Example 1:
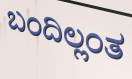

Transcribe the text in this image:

ಬಂದಿಲ್ಲಂತ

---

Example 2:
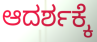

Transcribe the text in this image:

ಆದರ್ಶಕ್ಕೆ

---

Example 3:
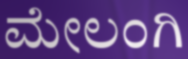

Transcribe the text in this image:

ಮೇಲಂಗಿ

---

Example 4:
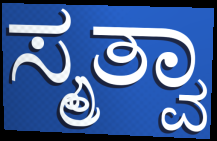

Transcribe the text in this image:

ಸ್ಮೃತ್ವಾ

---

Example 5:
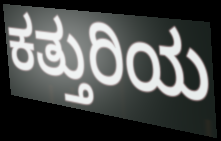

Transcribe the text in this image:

ಕತ್ತುರಿಯ